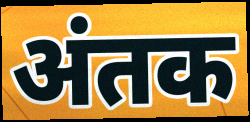
अंतक